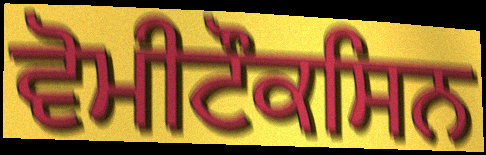
ਵੋਮੀਟੌਕਸਿਨ